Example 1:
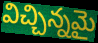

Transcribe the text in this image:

విచ్చిన్నమై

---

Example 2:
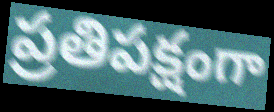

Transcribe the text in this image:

ప్రతిపక్షంగా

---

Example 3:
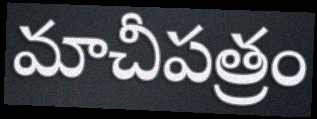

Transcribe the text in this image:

మాచీపత్రం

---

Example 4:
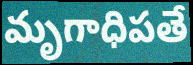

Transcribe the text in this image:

మృగాధిపతే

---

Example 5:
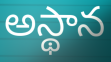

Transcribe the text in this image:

అస్థాన